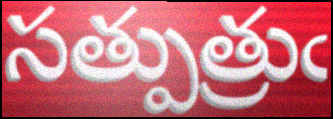
సత్పుత్రుఁ